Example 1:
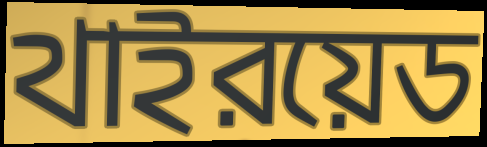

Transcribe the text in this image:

থাইরয়েড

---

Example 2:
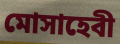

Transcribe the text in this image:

মোসাহেবী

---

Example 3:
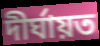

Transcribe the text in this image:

দীর্ঘায়ত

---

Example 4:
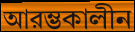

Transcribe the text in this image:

আরম্ভকালীন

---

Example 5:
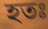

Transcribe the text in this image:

হতঃ